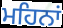
ਮਹਿਨਾਂ